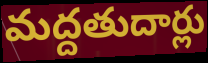
మద్దతుదార్లు